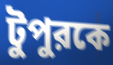
টুপুরকে